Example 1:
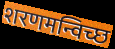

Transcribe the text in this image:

शरणमन्विच्छ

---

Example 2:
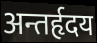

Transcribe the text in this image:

अन्तर्हृदय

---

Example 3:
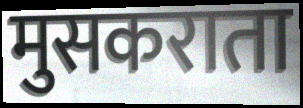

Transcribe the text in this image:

मुसकराता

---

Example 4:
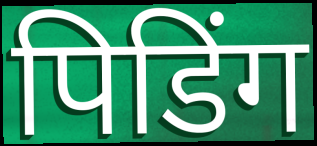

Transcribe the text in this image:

पिडिंग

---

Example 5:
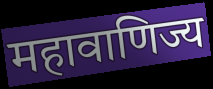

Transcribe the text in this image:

महावाणिज्‍य